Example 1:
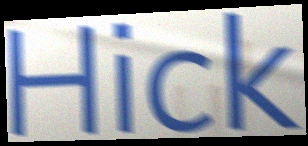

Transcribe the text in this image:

Hick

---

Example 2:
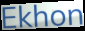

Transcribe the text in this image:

Ekhon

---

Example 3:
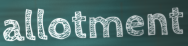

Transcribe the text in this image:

allotment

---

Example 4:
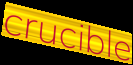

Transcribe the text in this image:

crucible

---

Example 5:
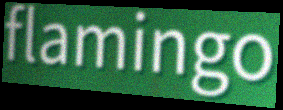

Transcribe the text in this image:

flamingo